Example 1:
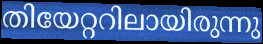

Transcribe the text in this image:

തിയേറ്ററിലായിരുന്നു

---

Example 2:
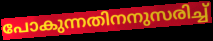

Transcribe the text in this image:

പോകുന്നതിനനുസരിച്ച്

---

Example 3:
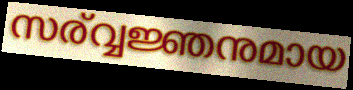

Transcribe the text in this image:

സര്വ്വജ്ഞനുമായ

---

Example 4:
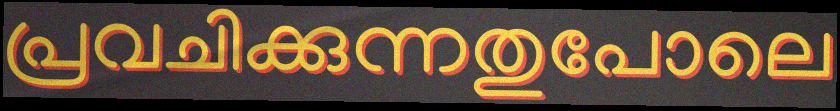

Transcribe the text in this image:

പ്രവചിക്കുന്നതുപോലെ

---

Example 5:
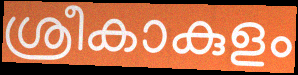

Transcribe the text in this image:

ശ്രീകാകുളം